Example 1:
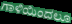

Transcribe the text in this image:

ಗಾಳಿಯಿಂದಲೂ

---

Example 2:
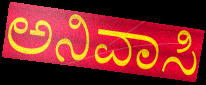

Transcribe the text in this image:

ಅನಿವಾಸಿ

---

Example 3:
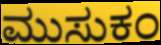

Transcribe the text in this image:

ಮುಸುಕಂ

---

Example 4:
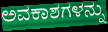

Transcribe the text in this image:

ಅವಕಾಶಗಳನ್ನು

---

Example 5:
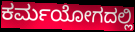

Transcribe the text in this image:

ಕರ್ಮಯೋಗದಲ್ಲಿ